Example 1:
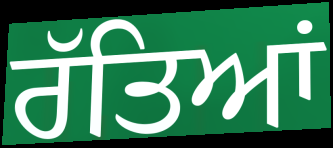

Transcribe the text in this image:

ਰੱਤਿਆਂ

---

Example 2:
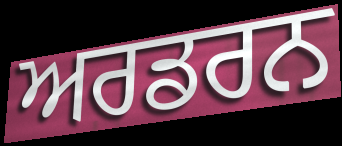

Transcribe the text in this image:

ਅਰਡਰਨ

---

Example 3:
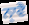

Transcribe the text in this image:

ਨੑਾਵੈ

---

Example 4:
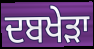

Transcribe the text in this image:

ਦਬਖੇੜਾ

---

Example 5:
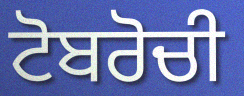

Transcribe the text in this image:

ਟੋਬਰੋਚੀ